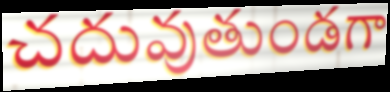
చదువుతుండగా